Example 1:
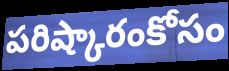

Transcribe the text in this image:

పరిష్కారంకోసం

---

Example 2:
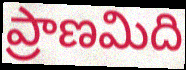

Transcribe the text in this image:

ప్రాణమిది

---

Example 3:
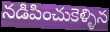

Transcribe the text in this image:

నడిపించుకెళ్ళిన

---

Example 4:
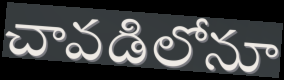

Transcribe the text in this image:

చావడిలోనూ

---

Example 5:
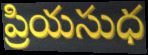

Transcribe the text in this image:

ప్రియసుధ